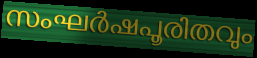
സംഘർഷപൂരിതവും